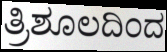
ತ್ರಿಶೂಲದಿಂದ